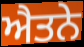
ਐਤਨੇ